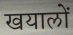
खयालों